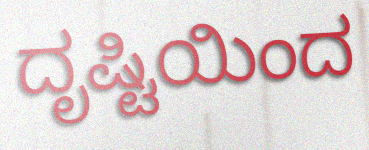
ದೃಷ್ಟಿಯಿಂದ